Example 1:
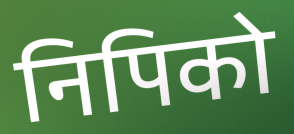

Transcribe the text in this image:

निपिको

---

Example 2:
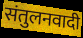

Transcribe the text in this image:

संतुलनवादी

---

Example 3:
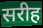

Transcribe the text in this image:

सरीह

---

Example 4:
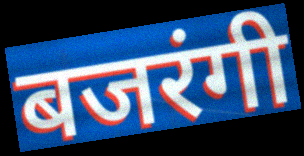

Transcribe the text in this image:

बजरंगी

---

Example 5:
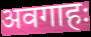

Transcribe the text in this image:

अवगाहः